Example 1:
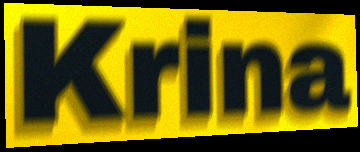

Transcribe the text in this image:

Krina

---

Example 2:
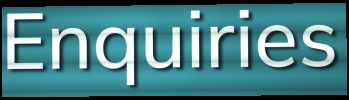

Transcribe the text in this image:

Enquiries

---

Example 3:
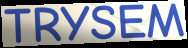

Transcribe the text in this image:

TRYSEM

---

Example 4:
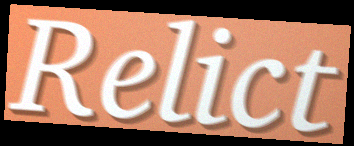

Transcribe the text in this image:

Relict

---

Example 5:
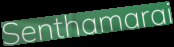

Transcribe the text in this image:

Senthamarai